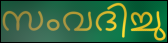
സംവദിച്ചു